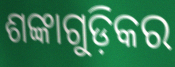
ଶଙ୍କାଗୁଡ଼ିକର